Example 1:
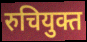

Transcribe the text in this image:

रुचियुक्त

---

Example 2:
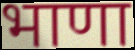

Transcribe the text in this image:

भाणा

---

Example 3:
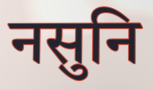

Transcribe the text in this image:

नसुनि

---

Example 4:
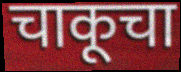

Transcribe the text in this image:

चाकूचा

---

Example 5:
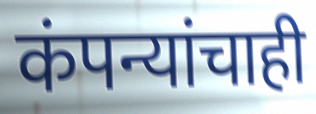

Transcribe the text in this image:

कंपन्यांचाही